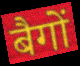
बैगों